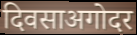
दिवसाअगोदर